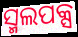
ସ୍ମଲପକ୍ସ